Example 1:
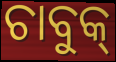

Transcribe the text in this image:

ଚାବୁକ୍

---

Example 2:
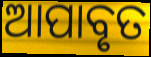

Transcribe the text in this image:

ଆପାବୃତ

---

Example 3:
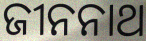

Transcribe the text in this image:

ଜୀନନାଥ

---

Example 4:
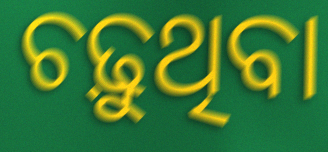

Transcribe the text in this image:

ଚଢ଼ୁଥିବା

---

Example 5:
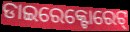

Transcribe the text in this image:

ଡାଇରେକ୍ଟୋରେଟ୍